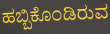
ಹಬ್ಬಿಕೊಂಡಿರುವ